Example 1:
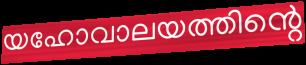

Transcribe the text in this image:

യഹോവാലയത്തിന്റെ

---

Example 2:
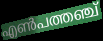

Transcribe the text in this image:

എൺപത്തഞ്ച്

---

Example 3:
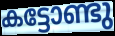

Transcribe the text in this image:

കട്ടോണ്ടു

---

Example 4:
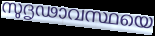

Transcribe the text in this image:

സുദൃഢാവസ്ഥയെ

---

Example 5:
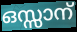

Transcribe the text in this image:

ഒസ്സാന്